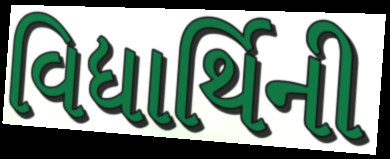
વિદ્યાર્થિની